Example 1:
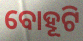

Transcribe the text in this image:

ବୋହୂଟି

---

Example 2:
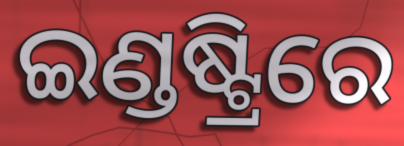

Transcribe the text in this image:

ଇଣ୍ଡଷ୍ଟ୍ରିରେ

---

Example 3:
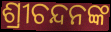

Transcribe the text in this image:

ଶ୍ରୀଚନ୍ଦନଙ୍କ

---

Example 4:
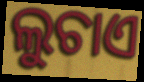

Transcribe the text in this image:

ଲୁଚାଏ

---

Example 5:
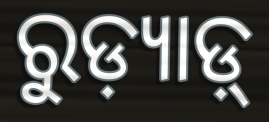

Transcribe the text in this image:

ରୁଡ଼୍ୟାଡ଼୍